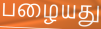
பழையது